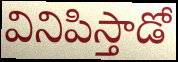
వినిపిస్తాడో